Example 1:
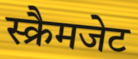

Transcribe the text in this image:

स्‍क्रैमजेट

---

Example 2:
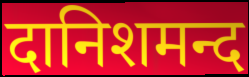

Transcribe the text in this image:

दानिशमन्द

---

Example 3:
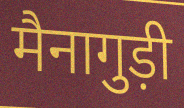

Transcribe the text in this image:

मैनागुड़ी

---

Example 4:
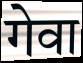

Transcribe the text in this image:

गेवा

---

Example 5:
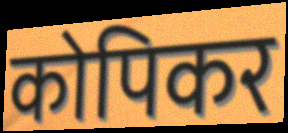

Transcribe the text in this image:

कोपिकर